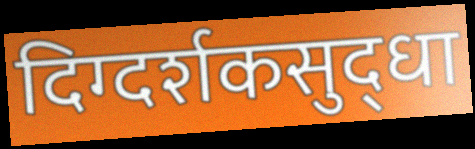
दिग्दर्शकसुद्धा